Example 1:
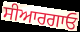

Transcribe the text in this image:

ਸੀਆਰਗਾਓ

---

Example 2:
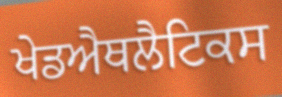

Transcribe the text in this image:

ਖੇਡਐਥਲੈਟਿਕਸ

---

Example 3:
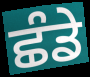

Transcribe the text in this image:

ਛੰਡੇ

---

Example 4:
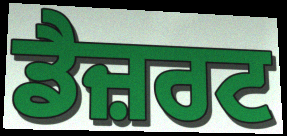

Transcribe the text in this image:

ਡੈਜ਼ਰਟ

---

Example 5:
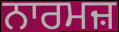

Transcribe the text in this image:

ਨਾਰਮਜ਼